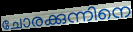
ചോരക്കുന്നിനെ